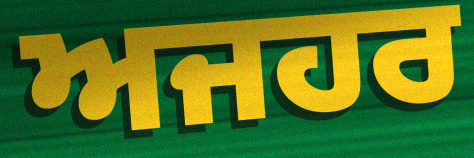
ਅਜਹਰ